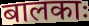
बालकाः